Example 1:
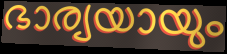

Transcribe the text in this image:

ഭാര്യയായും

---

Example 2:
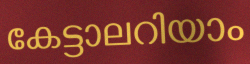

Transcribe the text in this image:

കേട്ടാലറിയാം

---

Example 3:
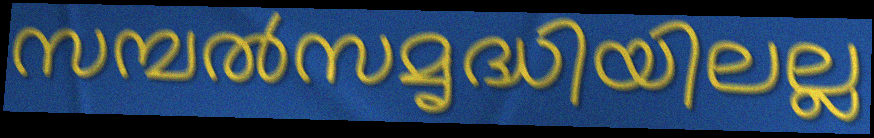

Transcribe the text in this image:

സമ്പൽസമൃദ്ധിയിലല്ല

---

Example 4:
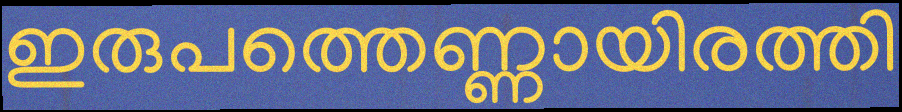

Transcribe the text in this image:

ഇരുപത്തെണ്ണായിരത്തി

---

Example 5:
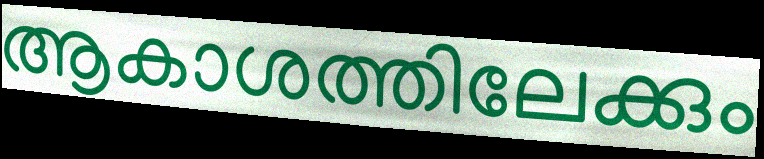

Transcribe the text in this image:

ആകാശത്തിലേക്കും